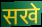
सखे